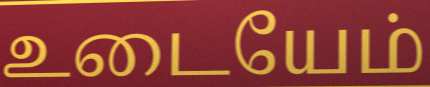
உடையேம்